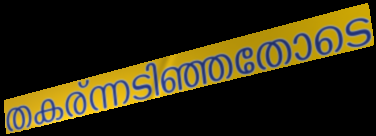
തകര്ന്നടിഞ്ഞതോടെ